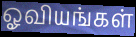
ஓவியங்கள்